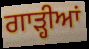
ਗਾੜ੍ਹੀਆਂ